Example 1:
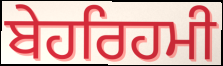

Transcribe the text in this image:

ਬੇਹਰਿਹਮੀ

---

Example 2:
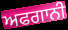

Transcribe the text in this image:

ਅਫਗਾਨੀ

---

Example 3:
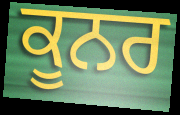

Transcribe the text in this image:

ਕੂਨਰ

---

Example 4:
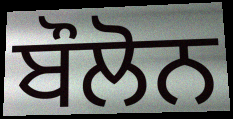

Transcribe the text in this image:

ਬੌਲੋਨ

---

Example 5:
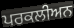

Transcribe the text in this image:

ਪਰਕਲੀਅਨ